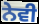
ਨੇਵੀ